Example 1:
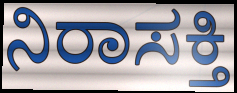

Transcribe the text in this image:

ನಿರಾಸಕ್ತಿ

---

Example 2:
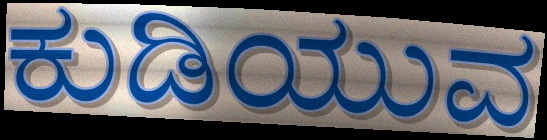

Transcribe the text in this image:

ಕುಡಿಯುವ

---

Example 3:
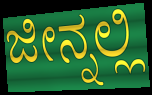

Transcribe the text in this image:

ಜೀನ್ನಲ್ಲಿ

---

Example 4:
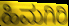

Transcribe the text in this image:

ಹಿಮಗಿರಿ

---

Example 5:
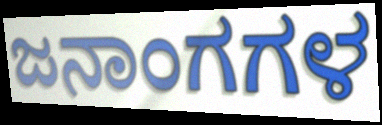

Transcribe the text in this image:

ಜನಾಂಗಗಳ